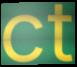
ct